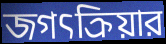
জগৎক্রিয়ার